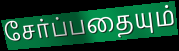
சேர்ப்பதையும்